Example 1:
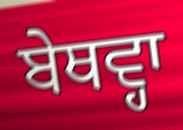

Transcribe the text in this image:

ਬੇਥਵ੍ਹਾ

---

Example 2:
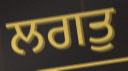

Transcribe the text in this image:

ਲਗਤੁ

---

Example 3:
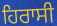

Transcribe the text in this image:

ਹਿਰਾਸੀ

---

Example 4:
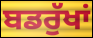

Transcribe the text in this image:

ਬਡਰੁੱਖਾਂ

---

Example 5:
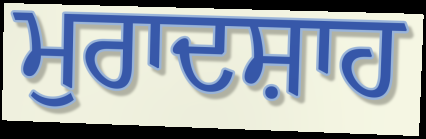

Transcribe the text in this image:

ਮੁਰਾਦਸ਼ਾਹ